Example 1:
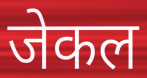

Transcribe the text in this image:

जेकल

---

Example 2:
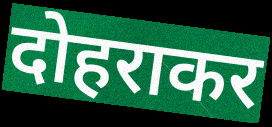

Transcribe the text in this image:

दोहराकर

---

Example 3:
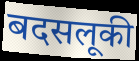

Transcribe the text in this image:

बदसलूकी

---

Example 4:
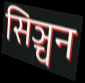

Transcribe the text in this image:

सिञ्चन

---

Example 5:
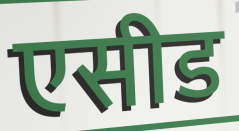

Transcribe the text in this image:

एसीड